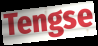
Tengse